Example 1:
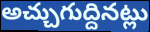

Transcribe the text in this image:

అచ్చుగుద్దినట్లు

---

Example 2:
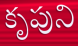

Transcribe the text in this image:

కృపుని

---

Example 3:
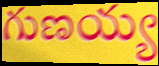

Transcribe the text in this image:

గుణయ్య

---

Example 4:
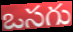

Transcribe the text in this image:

ఒసగు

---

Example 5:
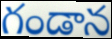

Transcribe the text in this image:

గండాన